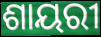
ଶାୟରୀ